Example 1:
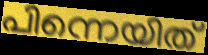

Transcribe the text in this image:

പിന്നെയിത്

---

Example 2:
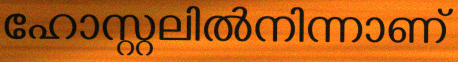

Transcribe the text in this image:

ഹോസ്റ്റലിൽനിന്നാണ്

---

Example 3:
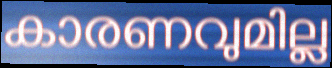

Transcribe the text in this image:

കാരണവുമില്ല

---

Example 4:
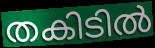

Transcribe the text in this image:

തകിടിൽ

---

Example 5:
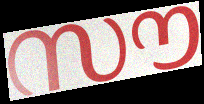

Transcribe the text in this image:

സൗ